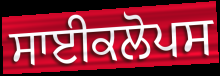
ਸਾਈਕਲੋਪਸ